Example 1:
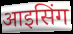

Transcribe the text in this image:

आइसिंग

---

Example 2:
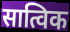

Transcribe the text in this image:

सात्विक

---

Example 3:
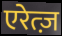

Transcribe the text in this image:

एरेत्ज़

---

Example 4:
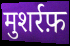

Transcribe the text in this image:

मुशर्रफ़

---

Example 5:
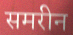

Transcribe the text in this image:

समरीन